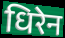
धिरेन